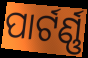
ପାର୍ଟର୍ଣ୍ଣ